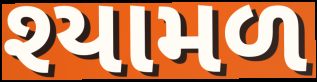
શ્યામળ